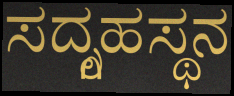
ಸದ್ಗೃಹಸ್ಥನ